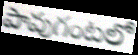
పావుగంటలో